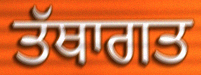
ਤੱਥਾਗਤ